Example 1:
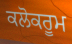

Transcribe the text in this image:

ਕਲੋਕਰੂਮ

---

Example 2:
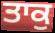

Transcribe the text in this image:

ਤਾਕੁ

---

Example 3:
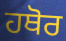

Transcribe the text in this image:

ਹਥੋਰ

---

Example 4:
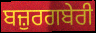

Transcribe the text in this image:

ਬਜ਼ੁਰਗਬੇਰੀ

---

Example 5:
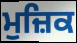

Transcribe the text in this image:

ਮੁਜ਼ਿਕ